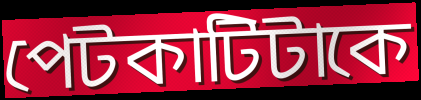
পেটকাটিটাকে